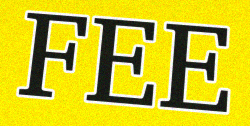
FEE